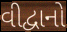
વીદ્વાનો